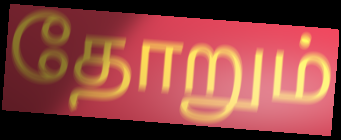
தோறும்